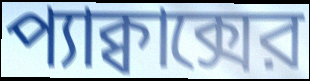
প্যাক্বাক্সের